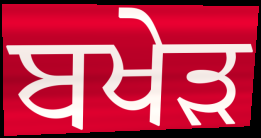
ਬਖੇੜ